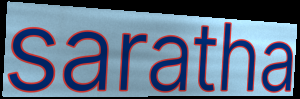
saratha